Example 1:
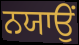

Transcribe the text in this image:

ਨਯਾਉਂ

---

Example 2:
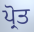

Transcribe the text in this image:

ਪ੍ਰੋਤ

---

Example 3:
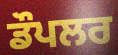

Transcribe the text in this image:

ਡੌਪਲਰ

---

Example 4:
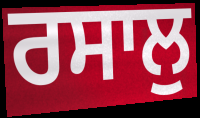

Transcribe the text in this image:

ਰਸਾਲੁ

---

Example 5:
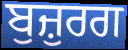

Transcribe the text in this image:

ਬੁਜ਼ੁਰਗ